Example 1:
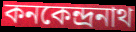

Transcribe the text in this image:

কনকেন্দ্রনাথ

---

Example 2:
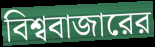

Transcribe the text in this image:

বিশ্ববাজারের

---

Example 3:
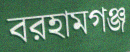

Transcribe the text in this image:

বরহামগঞ্জ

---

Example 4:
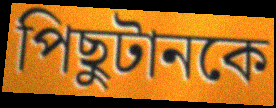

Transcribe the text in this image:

পিছুটানকে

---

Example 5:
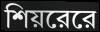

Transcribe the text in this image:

শিয়রেরে